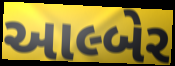
આલ્બેર